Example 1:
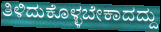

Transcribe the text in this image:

ತಿಳಿದುಕೊಳ್ಳಬೇಕಾದದ್ದು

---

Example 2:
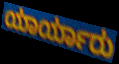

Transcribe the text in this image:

ಯಾರ್ಯಾರು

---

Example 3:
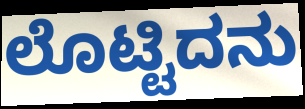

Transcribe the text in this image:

ಲೊಟ್ಟಿದನು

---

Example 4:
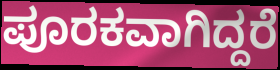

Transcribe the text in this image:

ಪೂರಕವಾಗಿದ್ದರೆ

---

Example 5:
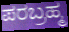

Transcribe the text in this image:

ಪರಬ್ರಹ್ಮ